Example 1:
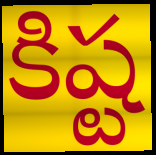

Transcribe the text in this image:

కిష్ట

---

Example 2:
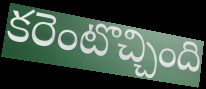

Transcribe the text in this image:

కరెంటొచ్చింది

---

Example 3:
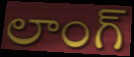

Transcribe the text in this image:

లాంగ్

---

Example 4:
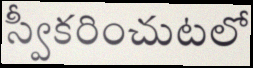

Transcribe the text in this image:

స్వీకరించుటలో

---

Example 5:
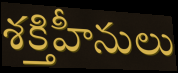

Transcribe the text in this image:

శక్తిహీనులు